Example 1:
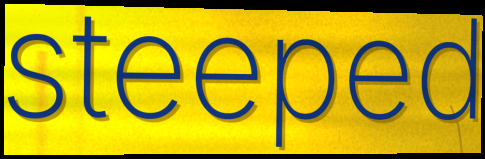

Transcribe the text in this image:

steeped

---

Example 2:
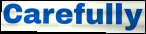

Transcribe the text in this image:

Carefully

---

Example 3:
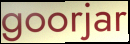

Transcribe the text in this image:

goorjar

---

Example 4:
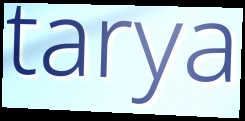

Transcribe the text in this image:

tarya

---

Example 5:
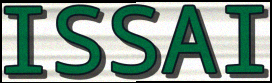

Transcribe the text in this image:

ISSAI